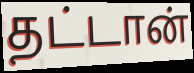
தட்டான்